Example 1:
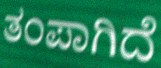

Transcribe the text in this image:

ತಂಪಾಗಿದೆ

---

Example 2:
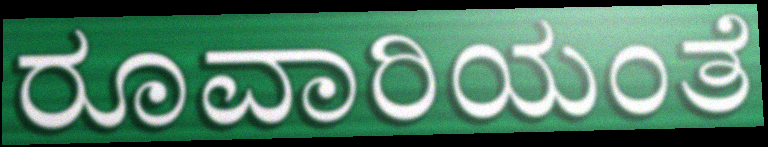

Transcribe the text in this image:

ರೂವಾರಿಯಂತೆ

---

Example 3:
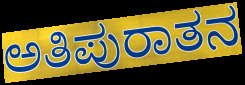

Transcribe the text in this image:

ಅತಿಪುರಾತನ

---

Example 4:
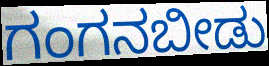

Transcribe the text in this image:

ಗಂಗನಬೀಡು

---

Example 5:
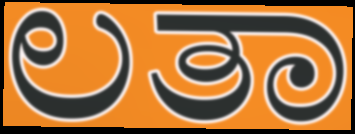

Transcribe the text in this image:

ಲತಾ